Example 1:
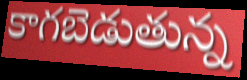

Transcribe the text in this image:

కాగబెడుతున్న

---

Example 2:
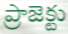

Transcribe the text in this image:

ప్రాజెక్టు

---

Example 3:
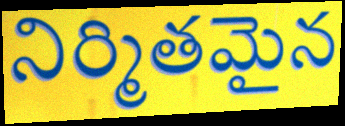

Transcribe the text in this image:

నిర్మితమైన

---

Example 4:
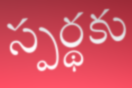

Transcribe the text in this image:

స్పర్థకు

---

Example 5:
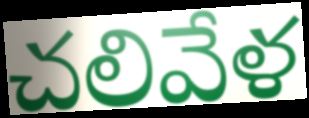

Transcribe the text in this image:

చలివేళ